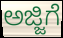
ಅಜ್ಜಿಗೆ